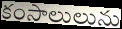
కంసాలులును